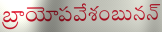
బ్రాయోపవేశంబునన్